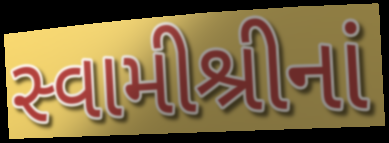
સ્વામીશ્રીનાં